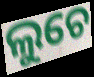
ଲୁଚେ